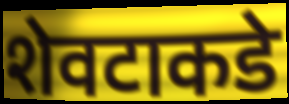
शेवटाकडे